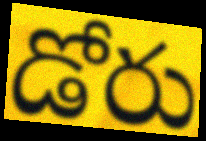
డోరు